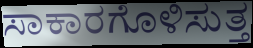
ಸಾಕಾರಗೊಳಿಸುತ್ತ